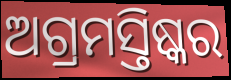
ଅଗ୍ରମସ୍ତିଷ୍କର